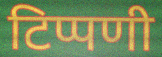
टिप्पणी